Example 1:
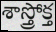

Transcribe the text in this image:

శాస్త్రోక్త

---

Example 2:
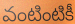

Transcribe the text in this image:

వంటింటికీ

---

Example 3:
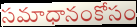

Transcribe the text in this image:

సమాధానంకోసం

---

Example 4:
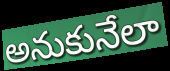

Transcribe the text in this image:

అనుకునేలా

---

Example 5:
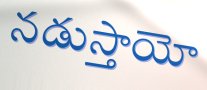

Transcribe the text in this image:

నడుస్తాయో